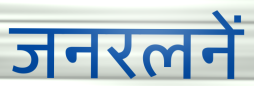
जनरलनें